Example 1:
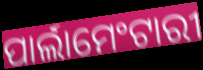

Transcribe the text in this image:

ପାର୍ଲାମେଂଟାରୀ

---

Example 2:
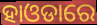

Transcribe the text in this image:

ହାଓଡାରେ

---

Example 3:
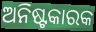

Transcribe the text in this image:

ଅନିଷ୍ଟକାରକ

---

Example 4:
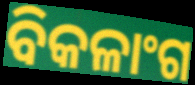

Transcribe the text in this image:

ବିକଳାଂଗ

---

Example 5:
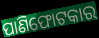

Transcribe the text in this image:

ପାଣିଫୋଟକାର